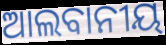
ଆଲବାନୀୟ